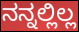
ನನ್ನಲ್ಲಿಲ್ಲ